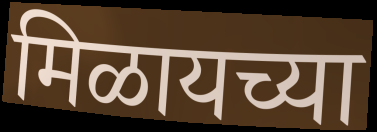
मिळायच्या